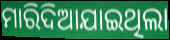
ମାରିଦିଆଯାଇଥିଲା